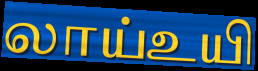
லாய்உயி